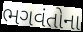
ભગવંતોના